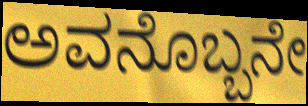
ಅವನೊಬ್ಬನೇ